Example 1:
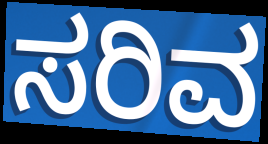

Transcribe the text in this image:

ಸರಿವ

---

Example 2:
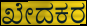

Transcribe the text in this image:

ಖೇದಕರ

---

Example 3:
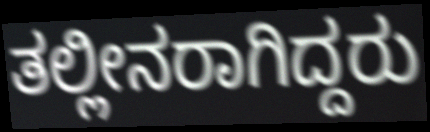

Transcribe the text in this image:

ತಲ್ಲೀನರಾಗಿದ್ದರು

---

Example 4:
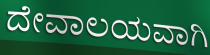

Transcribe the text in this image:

ದೇವಾಲಯವಾಗಿ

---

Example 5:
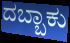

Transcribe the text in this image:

ದಬ್ಬಾಕು